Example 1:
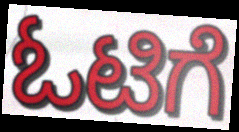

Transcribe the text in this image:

ಓಟಿಗೆ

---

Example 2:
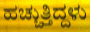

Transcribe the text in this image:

ಹಚ್ಚುತ್ತಿದ್ದಳು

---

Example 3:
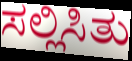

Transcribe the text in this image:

ಸಲ್ಲಿಸಿತು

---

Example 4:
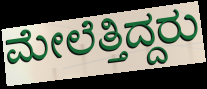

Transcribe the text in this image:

ಮೇಲೆತ್ತಿದ್ದರು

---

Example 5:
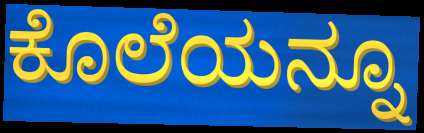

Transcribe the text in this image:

ಕೊಲೆಯನ್ನೂ